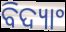
ବିଦ୍ଯାଂ